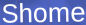
Shome